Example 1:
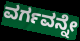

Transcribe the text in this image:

ವರ್ಗವನ್ನೇ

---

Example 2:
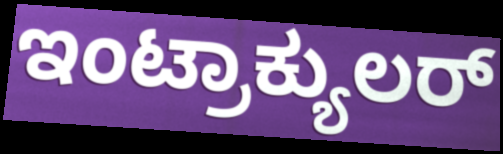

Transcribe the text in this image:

ಇಂಟ್ರಾಕ್ಯುಲರ್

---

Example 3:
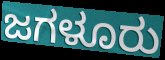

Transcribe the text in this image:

ಜಗಳೂರು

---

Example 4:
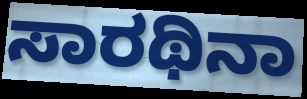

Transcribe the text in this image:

ಸಾರಥಿನಾ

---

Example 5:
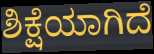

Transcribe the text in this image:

ಶಿಕ್ಷೆಯಾಗಿದೆ